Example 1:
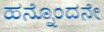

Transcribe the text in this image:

ಹನ್ನೊಂದನೇ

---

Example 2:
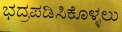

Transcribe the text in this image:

ಭದ್ರಪಡಿಸಿಕೊಳ್ಳಲು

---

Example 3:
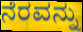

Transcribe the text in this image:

ನೆರವನ್ನು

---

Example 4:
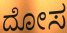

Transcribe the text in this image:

ದೋಸ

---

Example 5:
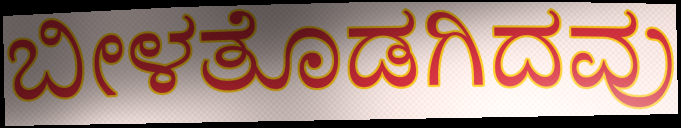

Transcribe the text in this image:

ಬೀಳತೊಡಗಿದವು